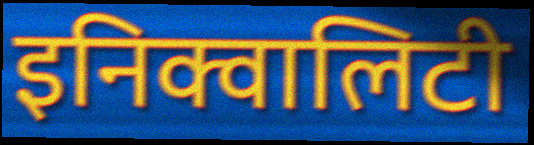
इनिक्वालिटी